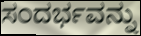
ಸಂದರ್ಭವನ್ನು